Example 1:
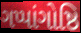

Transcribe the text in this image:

ગપ્પાંગોષ્ઠિ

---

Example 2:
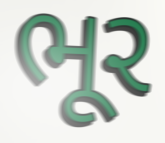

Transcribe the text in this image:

ભૂર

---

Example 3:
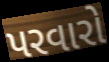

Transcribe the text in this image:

પરવારો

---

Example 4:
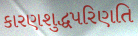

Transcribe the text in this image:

કારણશુદ્ધપરિણતિ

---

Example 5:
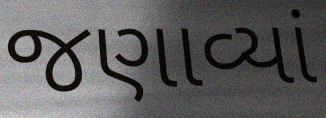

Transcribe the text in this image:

જણાવ્યાં